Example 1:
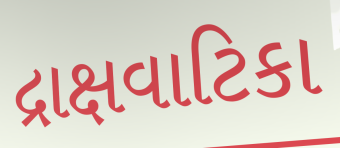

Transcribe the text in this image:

દ્રાક્ષવાટિકા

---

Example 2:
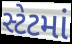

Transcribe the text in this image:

સ્ટેટમાં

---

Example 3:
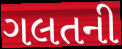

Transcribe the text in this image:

ગલતની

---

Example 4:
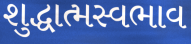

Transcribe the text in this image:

શુદ્ધાત્મસ્વભાવ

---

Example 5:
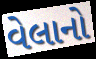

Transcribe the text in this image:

વેલાનો